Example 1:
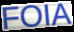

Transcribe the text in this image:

FOIA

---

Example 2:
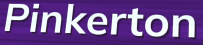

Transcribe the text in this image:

Pinkerton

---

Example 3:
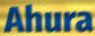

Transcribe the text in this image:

Ahura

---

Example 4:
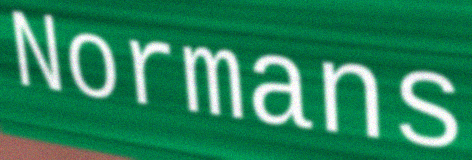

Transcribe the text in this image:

Normans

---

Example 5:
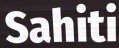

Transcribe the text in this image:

Sahiti